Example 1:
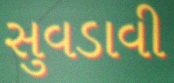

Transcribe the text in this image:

સુવડાવી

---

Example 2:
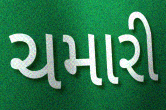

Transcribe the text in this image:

ચમારી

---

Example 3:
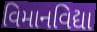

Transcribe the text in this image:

વિમાનવિદ્યા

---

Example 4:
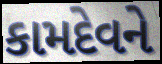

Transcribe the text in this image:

કામદેવને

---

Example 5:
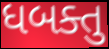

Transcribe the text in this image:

ધબક્તુ